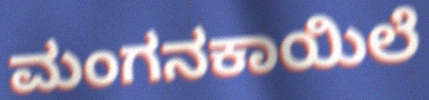
ಮಂಗನಕಾಯಿಲೆ